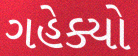
ગહેક્યો